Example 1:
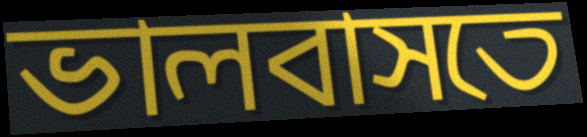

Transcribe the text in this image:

ভালবাসতে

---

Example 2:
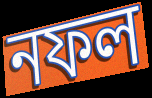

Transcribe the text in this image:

নফল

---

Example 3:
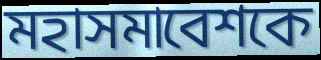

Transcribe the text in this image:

মহাসমাবেশকে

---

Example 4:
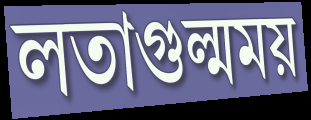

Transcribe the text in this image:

লতাগুল্মময়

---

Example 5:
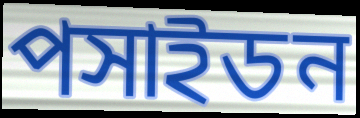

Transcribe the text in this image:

পসাইডন